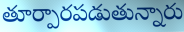
తూర్పారపడుతున్నారు